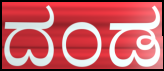
ದಂಡ